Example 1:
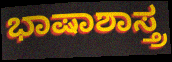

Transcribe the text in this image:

ಭಾಷಾಶಾಸ್ತ್ರ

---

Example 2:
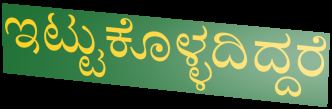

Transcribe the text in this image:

ಇಟ್ಟುಕೊಳ್ಳದಿದ್ದರೆ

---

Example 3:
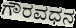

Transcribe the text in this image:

ಗೌರವಧನ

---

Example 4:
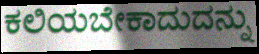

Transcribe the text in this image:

ಕಲಿಯಬೇಕಾದುದನ್ನು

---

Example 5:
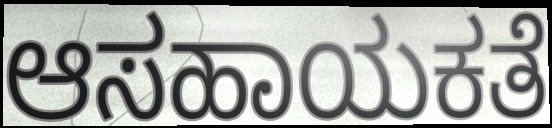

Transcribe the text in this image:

ಆಸಹಾಯಕತೆ